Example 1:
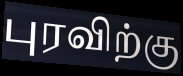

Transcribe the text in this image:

புரவிற்கு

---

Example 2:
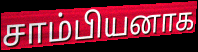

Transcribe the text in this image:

சாம்பியனாக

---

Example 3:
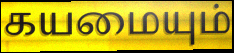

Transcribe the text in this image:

கயமையும்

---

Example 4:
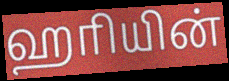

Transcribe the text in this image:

ஹரியின்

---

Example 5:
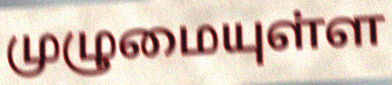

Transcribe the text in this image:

முழுமையுள்ள